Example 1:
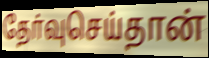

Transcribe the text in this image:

தேர்வுசெய்தான்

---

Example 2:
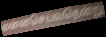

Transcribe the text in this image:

என்னசெய்வதென்று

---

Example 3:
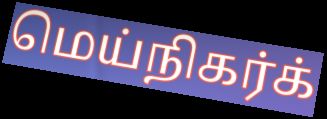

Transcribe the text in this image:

மெய்நிகர்க்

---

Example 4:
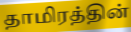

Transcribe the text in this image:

தாமிரத்தின்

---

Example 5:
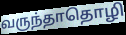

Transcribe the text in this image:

வருந்தாதொழி